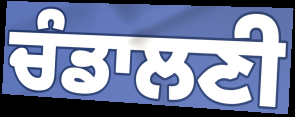
ਚੰਡਾਲਣੀ